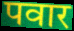
पवार